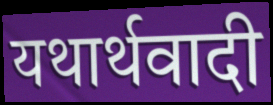
यथार्थवादी